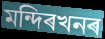
মন্দিৰখনৰ